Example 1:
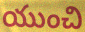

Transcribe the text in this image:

యుంచి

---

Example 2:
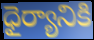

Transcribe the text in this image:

ధైర్యానికి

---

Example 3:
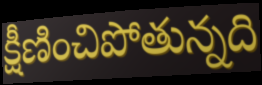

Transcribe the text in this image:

క్షీణించిపోతున్నది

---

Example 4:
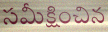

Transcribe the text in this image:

సమీక్షించిన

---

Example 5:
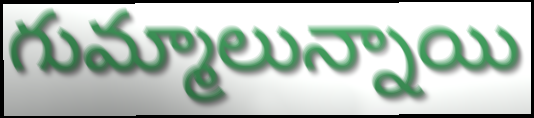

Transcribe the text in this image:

గుమ్మాలున్నాయి